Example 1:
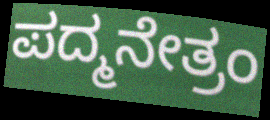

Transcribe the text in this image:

ಪದ್ಮನೇತ್ರಂ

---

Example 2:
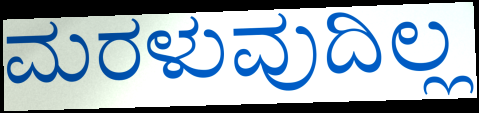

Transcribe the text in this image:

ಮರಳುವುದಿಲ್ಲ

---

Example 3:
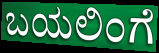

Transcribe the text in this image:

ಬಯಲಿಂಗೆ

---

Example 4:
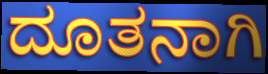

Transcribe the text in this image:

ದೂತನಾಗಿ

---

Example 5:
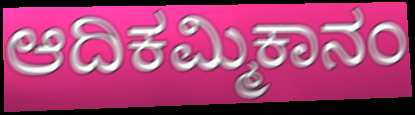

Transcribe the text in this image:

ಆದಿಕಮ್ಮಿಕಾನಂ